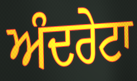
ਅੰਦਰੇਟਾ